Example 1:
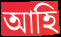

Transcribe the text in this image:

আহি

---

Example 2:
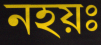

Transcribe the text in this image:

নহয়ঃ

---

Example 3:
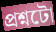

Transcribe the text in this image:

প্ৰশ্নটো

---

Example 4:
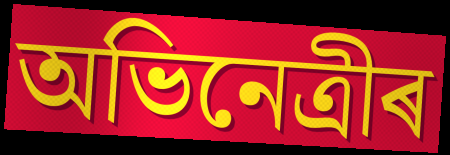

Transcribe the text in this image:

অভিনেত্ৰীৰ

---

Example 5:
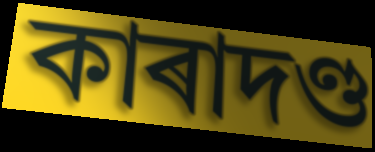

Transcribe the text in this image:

কাৰাদণ্ড